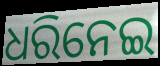
ଧରିନେଇ